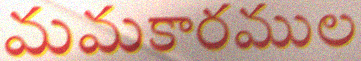
మమకారముల